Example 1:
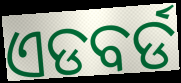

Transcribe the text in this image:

ଏଡବର୍ଡ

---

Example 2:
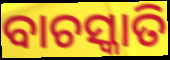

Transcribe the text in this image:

ବାଚସ୍କାତି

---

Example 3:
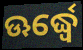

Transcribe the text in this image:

ଊର୍ଦ୍ଧ୍ୱେ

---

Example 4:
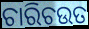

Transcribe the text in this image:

ଚାରିଚଉତ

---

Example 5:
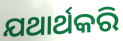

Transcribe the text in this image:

ଯଥାର୍ଥକରି